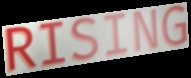
RISING